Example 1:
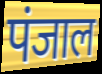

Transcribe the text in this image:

पंजाल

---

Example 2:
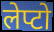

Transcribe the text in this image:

लेप्टो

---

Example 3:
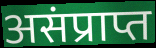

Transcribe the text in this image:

असंप्राप्त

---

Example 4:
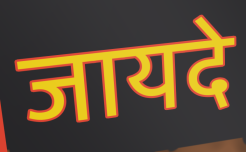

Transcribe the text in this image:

जायदे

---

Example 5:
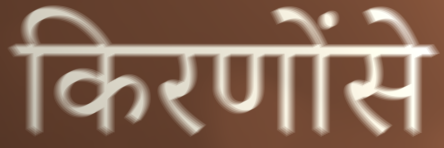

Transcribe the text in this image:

किरणोंसे